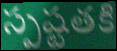
స్పష్టతకి